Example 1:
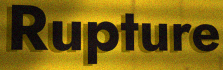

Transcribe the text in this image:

Rupture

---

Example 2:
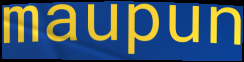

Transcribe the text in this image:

maupun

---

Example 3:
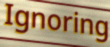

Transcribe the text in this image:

Ignoring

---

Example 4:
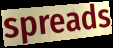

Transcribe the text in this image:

spreads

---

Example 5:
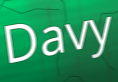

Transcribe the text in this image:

Davy